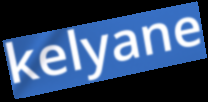
kelyane